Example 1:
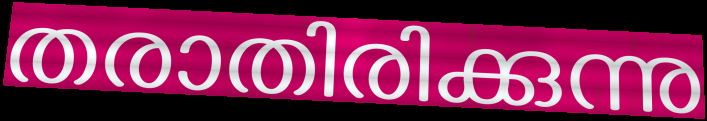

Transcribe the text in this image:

തരാതിരിക്കുന്നു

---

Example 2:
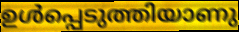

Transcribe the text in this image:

ഉൾപ്പെടുത്തിയാണു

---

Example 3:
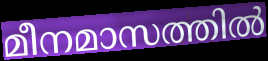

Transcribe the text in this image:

മീനമാസത്തിൽ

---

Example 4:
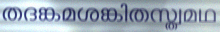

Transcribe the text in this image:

തദങ്കമശങ്കിതസ്ത്വമഥ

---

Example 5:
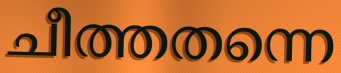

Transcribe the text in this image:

ചീത്തതന്നെ